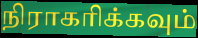
நிராகரிக்கவும்